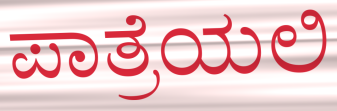
ಪಾತ್ರೆಯಲಿ